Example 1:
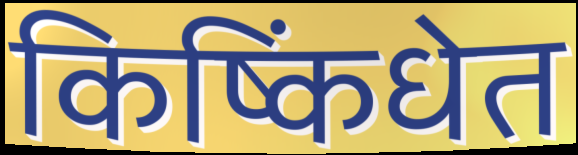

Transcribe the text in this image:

किष्किंधेत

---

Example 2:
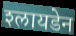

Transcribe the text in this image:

श्लायडेन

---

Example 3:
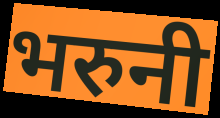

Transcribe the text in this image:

भरुनी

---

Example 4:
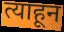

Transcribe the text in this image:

त्याहून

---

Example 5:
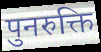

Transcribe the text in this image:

पुनरुक्ति